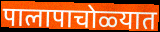
पालापाचोळ्यात